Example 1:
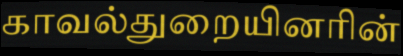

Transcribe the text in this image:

காவல்துறையினரின்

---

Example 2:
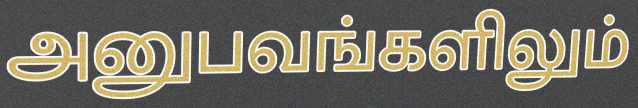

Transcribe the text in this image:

அனுபவங்களிலும்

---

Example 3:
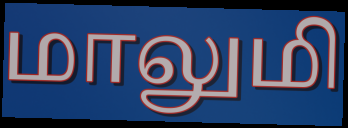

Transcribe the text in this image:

மாலுமி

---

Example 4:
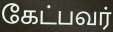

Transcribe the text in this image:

கேட்பவர்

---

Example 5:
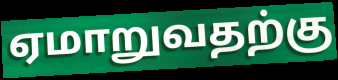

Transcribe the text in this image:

ஏமாறுவதற்கு